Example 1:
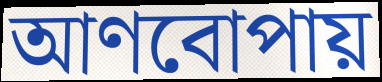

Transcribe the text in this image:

আণবোপায়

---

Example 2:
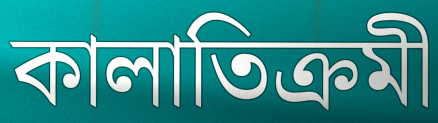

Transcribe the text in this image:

কালাতিক্রমী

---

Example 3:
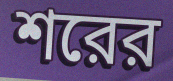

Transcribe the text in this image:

শরের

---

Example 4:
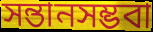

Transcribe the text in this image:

সন্তানসম্ভবা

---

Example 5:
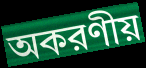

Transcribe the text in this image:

অকরণীয়